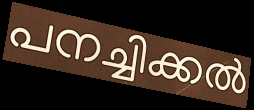
പനച്ചിക്കൽ